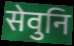
सेवुनि